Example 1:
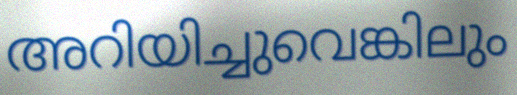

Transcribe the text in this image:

അറിയിച്ചുവെങ്കിലും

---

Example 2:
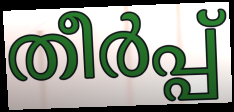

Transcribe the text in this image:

തീർപ്പ്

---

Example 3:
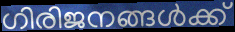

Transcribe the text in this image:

ഗിരിജനങ്ങൾക്ക്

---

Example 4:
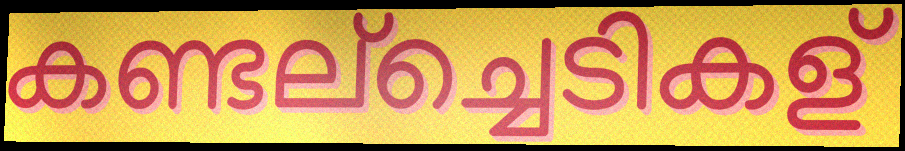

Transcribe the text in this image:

കണ്ടല്ച്ചെടികള്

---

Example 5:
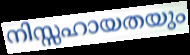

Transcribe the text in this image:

നിസ്സഹായതയും